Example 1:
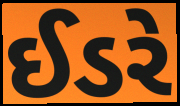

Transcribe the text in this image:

ઈડરે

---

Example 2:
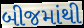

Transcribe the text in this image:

બીજમાંથી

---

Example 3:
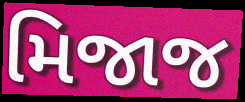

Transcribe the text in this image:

મિજાજ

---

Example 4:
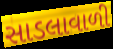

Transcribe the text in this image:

સાડલાવાળી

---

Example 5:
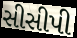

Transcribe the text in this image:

સીસીપી